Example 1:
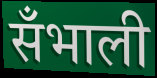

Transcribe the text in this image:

सँभाली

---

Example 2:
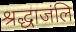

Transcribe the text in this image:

श्रद्धाजंलि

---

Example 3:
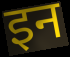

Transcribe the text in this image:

इन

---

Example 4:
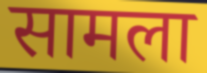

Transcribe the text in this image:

सामला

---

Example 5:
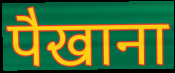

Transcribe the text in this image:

पैखाना